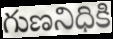
గుణనిధికి